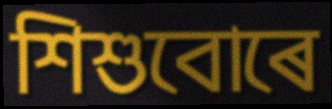
শিশুবোৰে